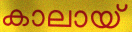
കാലായ്